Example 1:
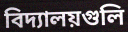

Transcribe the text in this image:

বিদ্যালয়গুলি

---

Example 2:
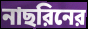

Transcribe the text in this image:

নাছরিনের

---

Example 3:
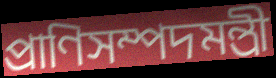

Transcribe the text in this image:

প্রাণিসম্পদমন্ত্রী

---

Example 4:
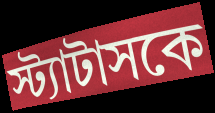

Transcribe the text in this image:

স্ট্যাটাসকে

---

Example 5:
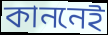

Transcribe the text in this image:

কাননেই